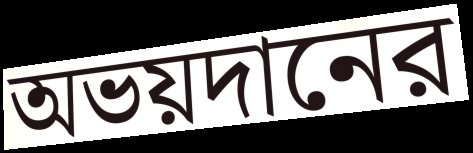
অভয়দানের